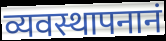
व्यवस्थापनानं